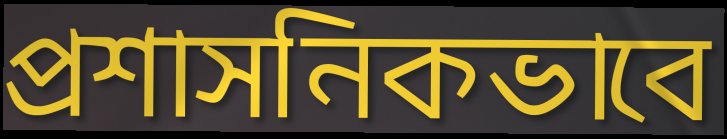
প্রশাসনিকভাবে